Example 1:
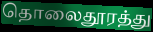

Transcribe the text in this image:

தொலைதூரத்து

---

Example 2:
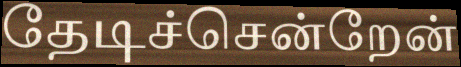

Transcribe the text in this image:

தேடிச்சென்றேன்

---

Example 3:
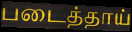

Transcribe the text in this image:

படைத்தாய்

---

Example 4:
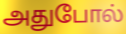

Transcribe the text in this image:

அதுபோல்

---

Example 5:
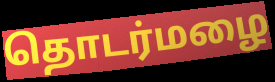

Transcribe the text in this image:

தொடர்மழை